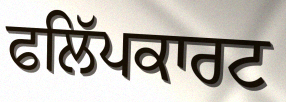
ਫਲਿੱਪਕਾਰਟ